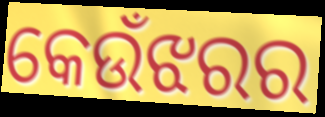
କେଉଁଝରର